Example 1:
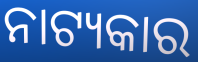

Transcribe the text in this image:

ନାଟ୍ଯକାର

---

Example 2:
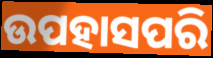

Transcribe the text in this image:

ଉପହାସପରି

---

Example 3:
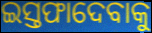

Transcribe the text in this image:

ଇସ୍ତଫାଦେବାକୁ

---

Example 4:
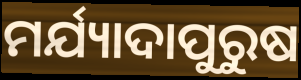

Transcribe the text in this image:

ମର୍ଯ୍ୟାଦାପୁରୁଷ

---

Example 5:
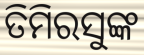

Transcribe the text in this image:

ତିମିରସୁଙ୍କ